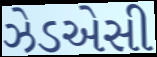
ઝેડએસી